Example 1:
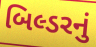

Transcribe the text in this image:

બિલ્ડરનું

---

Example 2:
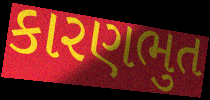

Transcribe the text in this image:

કારણભુત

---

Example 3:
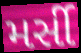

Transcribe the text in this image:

મર્સી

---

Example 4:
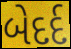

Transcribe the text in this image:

બેદર્દ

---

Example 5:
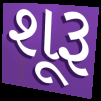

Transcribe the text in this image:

શૂરૂ